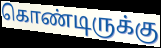
கொண்டிருக்கு